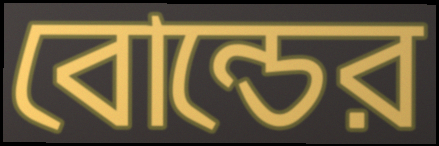
বোন্ডের